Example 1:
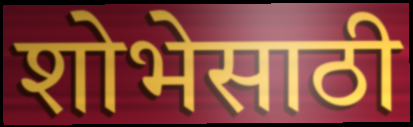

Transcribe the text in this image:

शोभेसाठी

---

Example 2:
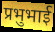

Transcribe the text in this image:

प्रभुभाई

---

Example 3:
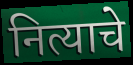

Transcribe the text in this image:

नित्याचे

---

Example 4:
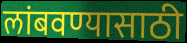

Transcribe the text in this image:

लांबवण्यासाठी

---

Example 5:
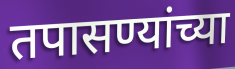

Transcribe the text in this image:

तपासण्यांच्या